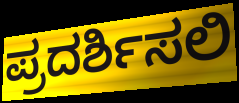
ಪ್ರದರ್ಶಿಸಲಿ